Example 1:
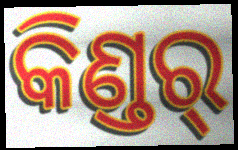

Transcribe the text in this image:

କିଣ୍ଡର୍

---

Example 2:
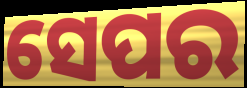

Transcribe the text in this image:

ସେପର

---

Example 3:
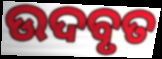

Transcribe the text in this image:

ଉଦବୃତ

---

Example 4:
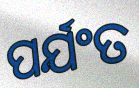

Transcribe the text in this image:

ପର୍ଯଂତ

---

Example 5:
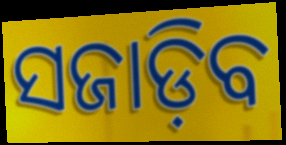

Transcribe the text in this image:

ସଜାଡ଼ିବ